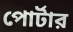
পোর্টার